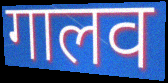
गालव